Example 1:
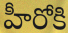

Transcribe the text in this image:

హీరోకి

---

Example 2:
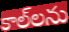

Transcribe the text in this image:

కాల్‌లను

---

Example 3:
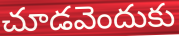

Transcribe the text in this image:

చూడవెందుకు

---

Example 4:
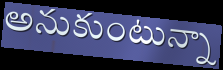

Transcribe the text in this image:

అనుకుంటున్నా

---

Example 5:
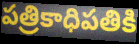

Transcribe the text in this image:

పత్రికాధిపతికి